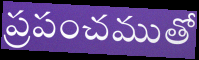
ప్రపంచముతో